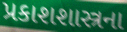
પ્રકાશશાસ્ત્રના